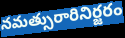
నమత్సురారినిర్జరం